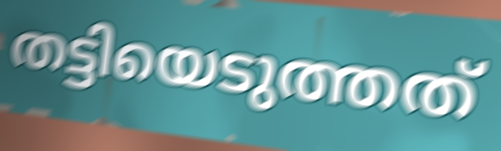
തട്ടിയെടുത്തത്